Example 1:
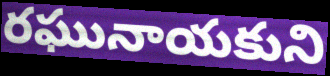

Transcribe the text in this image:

రఘునాయకుని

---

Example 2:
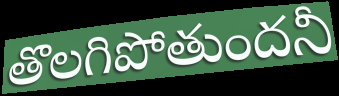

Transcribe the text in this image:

తొలగిపోతుందనీ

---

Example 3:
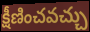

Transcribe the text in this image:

క్షీణించవచ్చు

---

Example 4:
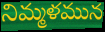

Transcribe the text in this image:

నిమ్మళమున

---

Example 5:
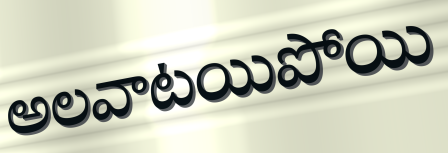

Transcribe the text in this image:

అలవాటయిపోయి